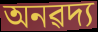
অনৱদ্য